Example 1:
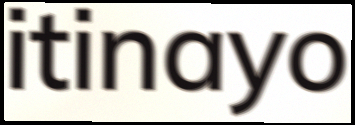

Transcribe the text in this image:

itinayo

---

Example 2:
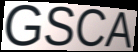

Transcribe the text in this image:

GSCA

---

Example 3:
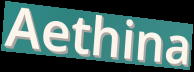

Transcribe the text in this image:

Aethina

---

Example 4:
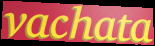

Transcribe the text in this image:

vachata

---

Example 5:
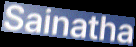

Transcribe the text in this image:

Sainatha